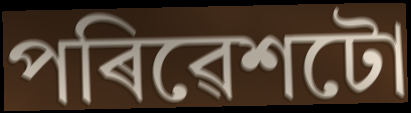
পৰিৱেশটো